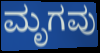
ಮೃಗವು